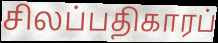
சிலப்பதிகாரப்